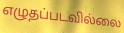
எழுதப்படவில்லை